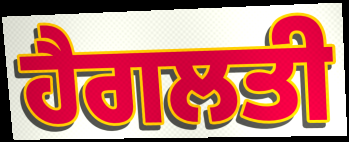
ਹੈਗਲਤੀ